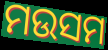
ମଉସମ